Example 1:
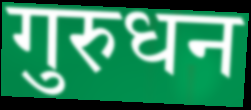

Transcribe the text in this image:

गुरुधन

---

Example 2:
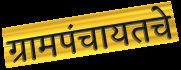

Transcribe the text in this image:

ग्रामपंचायतचे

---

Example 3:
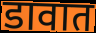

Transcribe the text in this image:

डावात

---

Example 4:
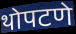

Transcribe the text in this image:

थोपटणे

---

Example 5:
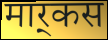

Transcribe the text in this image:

मार्कस